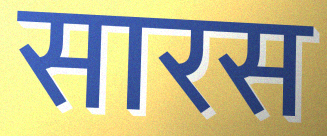
सारस